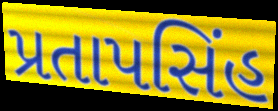
પ્રતાપસિંહ